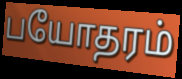
பயோதரம்